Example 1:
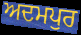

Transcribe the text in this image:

ਅਦਮਪੁਰ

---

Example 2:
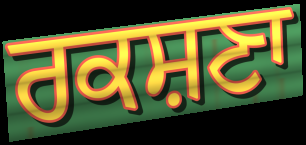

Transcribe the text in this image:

ਰਕਸ਼ਣਾ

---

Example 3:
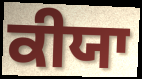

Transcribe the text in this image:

ਕੀਯਾ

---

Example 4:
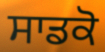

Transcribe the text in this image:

ਸਾਡਕੋ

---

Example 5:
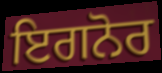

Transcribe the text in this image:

ਇਗਨੋਰ